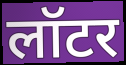
लॉटर